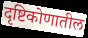
दृष्टिकोणातील